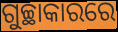
ଗୁଚ୍ଛାକାରରେ